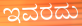
ಇವರದು